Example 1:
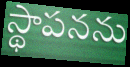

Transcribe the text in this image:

స్థాపనను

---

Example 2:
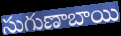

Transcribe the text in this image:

సుగుణాబాయి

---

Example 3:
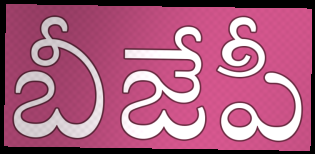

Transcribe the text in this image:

బీజేపీ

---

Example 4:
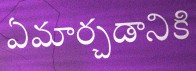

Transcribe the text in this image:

ఏమార్చడానికి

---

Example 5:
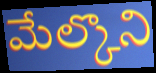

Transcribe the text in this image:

మేల్కొని